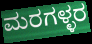
ಮರಗಳ್ಳರ